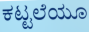
ಕಟ್ಟಲೆಯೂ